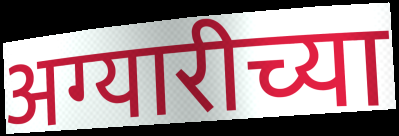
अग्यारीच्या